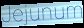
Jejunum